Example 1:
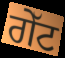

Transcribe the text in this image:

ਗੇੱਟ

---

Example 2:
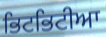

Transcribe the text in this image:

ਭਿਟਭਿਟੀਆ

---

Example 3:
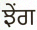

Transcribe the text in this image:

ਝੇਂਗ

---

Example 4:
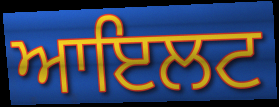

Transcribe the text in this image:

ਆਇਲਟ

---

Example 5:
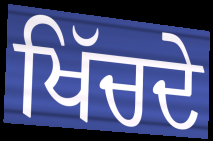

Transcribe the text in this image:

ਖਿੱਚਦੇ